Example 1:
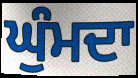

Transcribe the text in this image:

ਘੁੰਮਦਾ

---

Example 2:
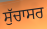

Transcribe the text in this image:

ਸੁੱਚਾਸਰ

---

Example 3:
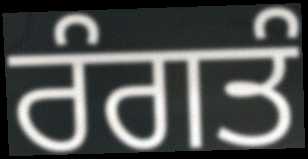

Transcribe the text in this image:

ਰੰਗਤੰ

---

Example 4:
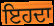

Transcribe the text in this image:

ਇਹਦਾ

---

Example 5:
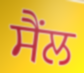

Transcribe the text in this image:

ਸੈਂਲ